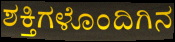
ಶಕ್ತಿಗಳೊಂದಿಗಿನ